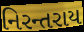
નિરન્તરાય